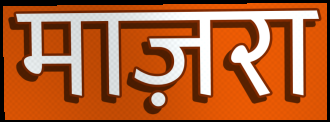
माज़रा